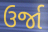
ઉર્જા